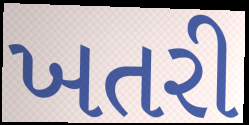
ખતરી